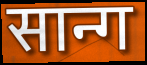
सान्ग